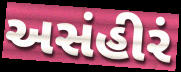
અસંહીરં